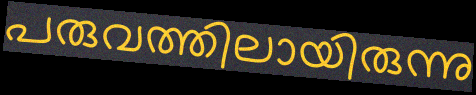
പരുവത്തിലായിരുന്നു